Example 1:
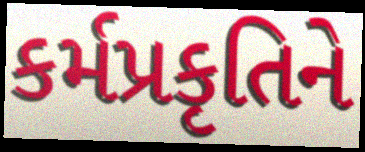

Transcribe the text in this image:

કર્મપ્રકૃતિને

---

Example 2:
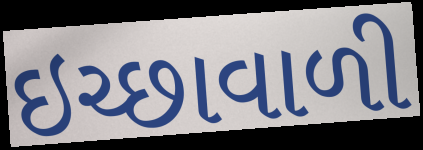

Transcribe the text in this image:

ઇચ્છાવાળી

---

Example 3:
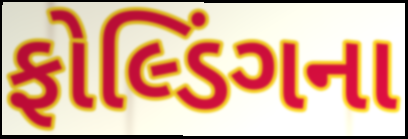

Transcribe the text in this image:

ફોલ્ડિંગના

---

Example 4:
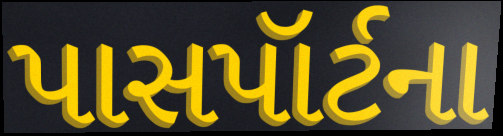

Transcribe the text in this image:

પાસપૉર્ટના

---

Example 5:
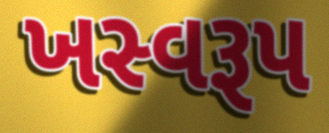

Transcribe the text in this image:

ખસ્વરૂપ